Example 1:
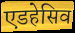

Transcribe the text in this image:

एडहेसिव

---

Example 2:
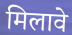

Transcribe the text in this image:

मिलावे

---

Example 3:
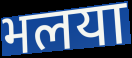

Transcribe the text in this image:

भलया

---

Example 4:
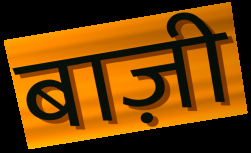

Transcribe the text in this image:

बाज़ी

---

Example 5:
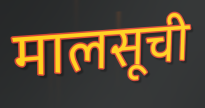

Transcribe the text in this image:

मालसूची